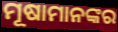
ମୂଷାମାନଙ୍କର